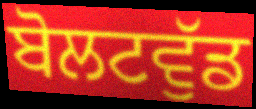
ਬੋਲਟਵੁੱਡ